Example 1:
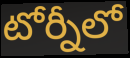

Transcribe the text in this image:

టోర్నీలో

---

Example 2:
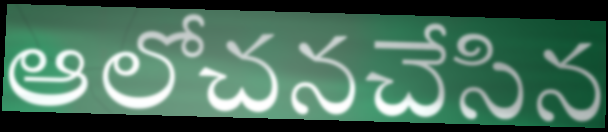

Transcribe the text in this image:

ఆలోచనచేసిన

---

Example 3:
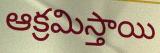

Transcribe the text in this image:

ఆక్రమిస్తాయి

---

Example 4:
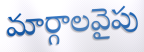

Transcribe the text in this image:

మార్గాలవైపు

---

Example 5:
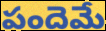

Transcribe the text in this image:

పందెమే